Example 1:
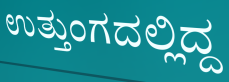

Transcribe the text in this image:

ಉತ್ತುಂಗದಲ್ಲಿದ್ದ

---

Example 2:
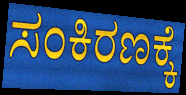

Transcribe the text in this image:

ಸಂಕಿರಣಕ್ಕೆ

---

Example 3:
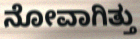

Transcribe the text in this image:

ನೋವಾಗಿತ್ತು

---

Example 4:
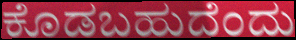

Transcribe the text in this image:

ಕೊಡಬಹುದೆಂದು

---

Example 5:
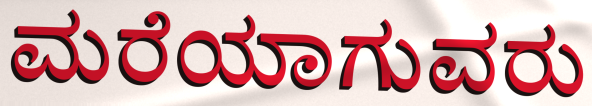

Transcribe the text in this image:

ಮರೆಯಾಗುವರು